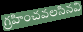
గ్రహించవలసినవి